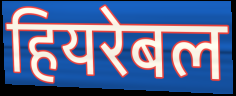
हियरेबल